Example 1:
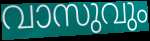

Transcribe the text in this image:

വാസുവും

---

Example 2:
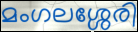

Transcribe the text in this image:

മംഗലശ്ശേരി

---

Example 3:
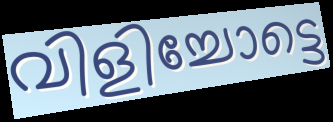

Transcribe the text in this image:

വിളിച്ചോട്ടെ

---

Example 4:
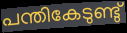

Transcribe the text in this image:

പന്തികേടുണ്ടു്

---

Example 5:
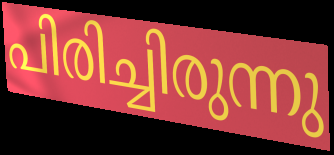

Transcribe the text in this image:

പിരിച്ചിരുന്നു